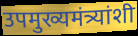
उपमुख्यमंत्र्यांशी